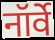
नॉर्वे